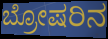
ಬ್ರೋಷರಿನ